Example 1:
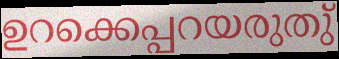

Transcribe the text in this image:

ഉറക്കെപ്പറയരുതു്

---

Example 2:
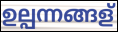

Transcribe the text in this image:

ഉല്പന്നങ്ങള്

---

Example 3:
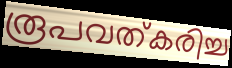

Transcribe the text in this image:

രൂപവത്കരിച്ച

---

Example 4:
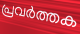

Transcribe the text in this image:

പ്രവർത്തക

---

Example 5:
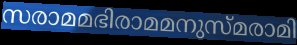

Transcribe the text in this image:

സരാമമഭിരാമമനുസ്മരാമി